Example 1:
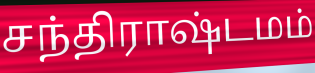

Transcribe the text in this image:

சந்திராஷ்டமம்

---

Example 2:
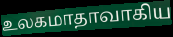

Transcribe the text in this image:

உலகமாதாவாகிய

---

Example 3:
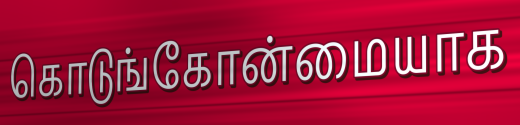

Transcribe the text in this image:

கொடுங்கோன்மையாக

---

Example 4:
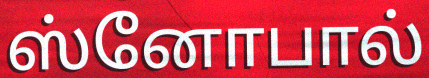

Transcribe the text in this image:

ஸ்னோபால்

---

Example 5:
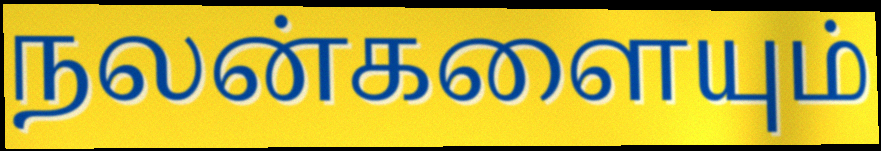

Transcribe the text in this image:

நலன்களையும்